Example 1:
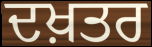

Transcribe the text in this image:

ਦਖ਼ਤਰ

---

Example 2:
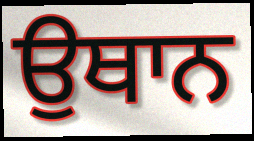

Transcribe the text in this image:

ਉਥਾਨ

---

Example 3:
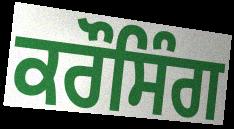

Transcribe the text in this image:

ਕਰੌਸਿੰਗ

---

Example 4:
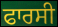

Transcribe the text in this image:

ਫਾਰਸੀ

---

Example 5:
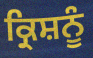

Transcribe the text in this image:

ਕ੍ਰਿਸ਼ਨੂੰ